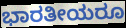
ಭಾರತೀಯರೂ